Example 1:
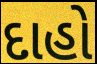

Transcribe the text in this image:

દાહો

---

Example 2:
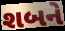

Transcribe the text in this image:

શબને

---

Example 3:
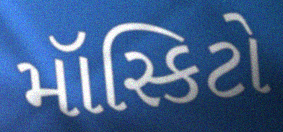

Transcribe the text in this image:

મૉસ્કિટો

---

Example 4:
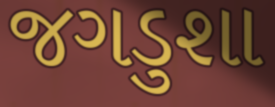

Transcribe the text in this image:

જગડુશા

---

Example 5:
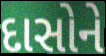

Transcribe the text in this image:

દાસોને